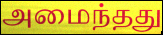
அமைந்தது